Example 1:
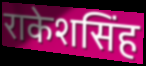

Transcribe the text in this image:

राकेशसिंह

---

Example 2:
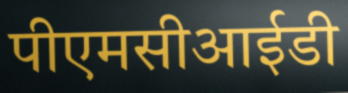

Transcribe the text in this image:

पीएमसीआईडी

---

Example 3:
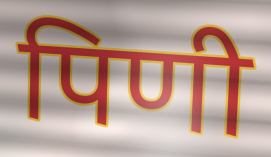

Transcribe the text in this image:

पिणी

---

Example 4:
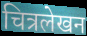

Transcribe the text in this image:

चित्रलेखन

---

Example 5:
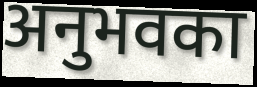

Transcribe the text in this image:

अनुभवका